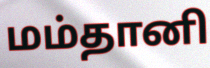
மம்தானி